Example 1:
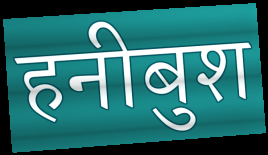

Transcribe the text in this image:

हनीबुश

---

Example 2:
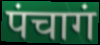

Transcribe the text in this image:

पंचागं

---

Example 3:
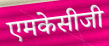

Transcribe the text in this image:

एमकेसीजी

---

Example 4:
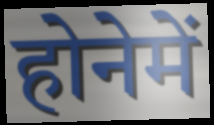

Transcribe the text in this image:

होनेमें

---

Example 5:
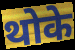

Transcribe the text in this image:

थोके